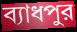
ব্যাধপুর